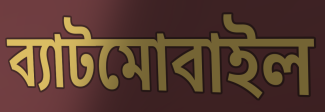
ব্যাটমোবাইল